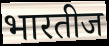
भारतीज